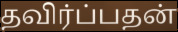
தவிர்ப்பதன்